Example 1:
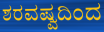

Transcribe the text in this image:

ಶರವಷ್ವದಿಂದ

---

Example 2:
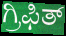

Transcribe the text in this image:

ಗ್ರಿಫಿತ್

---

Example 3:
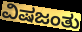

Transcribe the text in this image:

ವಿಷಜಂತು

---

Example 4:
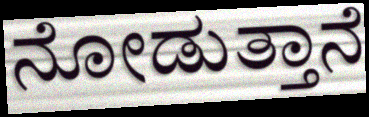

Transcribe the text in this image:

ನೋಡುತ್ತಾನೆ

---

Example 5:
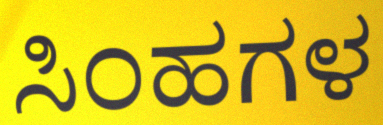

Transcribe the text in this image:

ಸಿಂಹಗಳ